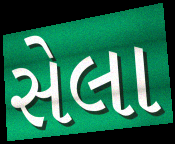
સેલા